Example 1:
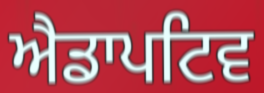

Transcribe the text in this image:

ਐਡਾਪਟਿਵ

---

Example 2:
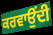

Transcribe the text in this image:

ਕਰਵਾਉਂਦੀ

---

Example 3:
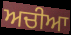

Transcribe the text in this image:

ਅਚੀਆ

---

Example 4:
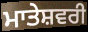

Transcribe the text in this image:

ਮਾਤੇਸ਼ਵਰੀ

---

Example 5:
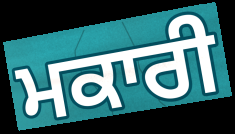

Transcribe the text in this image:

ਮਕਾਰੀ